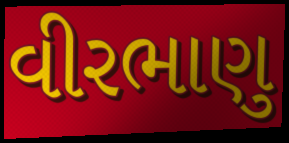
વીરભાણુ